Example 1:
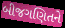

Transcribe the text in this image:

બીજગણિતને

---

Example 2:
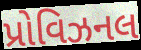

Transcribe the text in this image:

પ્રોવિઝનલ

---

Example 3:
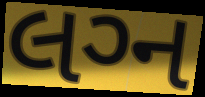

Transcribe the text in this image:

લગ્‍ન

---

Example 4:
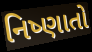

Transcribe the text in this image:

નિષ્ણાતો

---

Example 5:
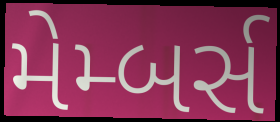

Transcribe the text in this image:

મેમ્બર્સ